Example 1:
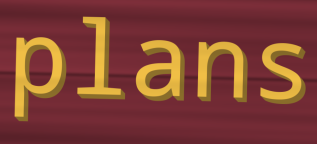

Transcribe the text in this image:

plans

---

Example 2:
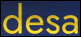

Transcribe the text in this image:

desa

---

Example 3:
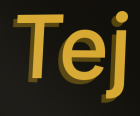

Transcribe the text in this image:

Tej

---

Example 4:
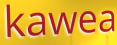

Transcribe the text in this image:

kawea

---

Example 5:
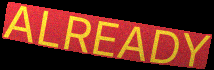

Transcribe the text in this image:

ALREADY